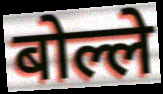
बोल्ले